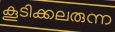
കൂടിക്കലരുന്ന